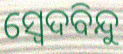
ସ୍ଵେଦବିନ୍ଦୁ